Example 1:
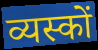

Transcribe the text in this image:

व्यस्कों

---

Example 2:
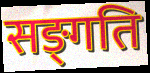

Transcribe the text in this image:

सङ्गति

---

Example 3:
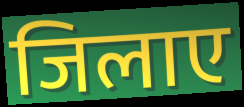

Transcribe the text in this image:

जिलाए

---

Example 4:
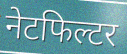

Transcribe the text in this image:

नेटफिल्टर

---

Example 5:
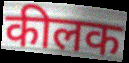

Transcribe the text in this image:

कीलक